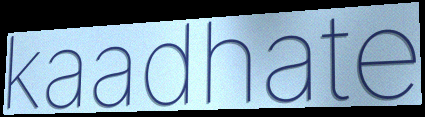
kaadhate